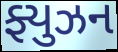
ફ્યુઝન